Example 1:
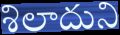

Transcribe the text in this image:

శిలాదుని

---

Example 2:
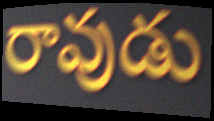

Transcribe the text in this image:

రావుడు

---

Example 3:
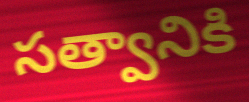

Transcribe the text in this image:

సత్వానికి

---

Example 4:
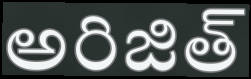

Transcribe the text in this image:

అరిజిత్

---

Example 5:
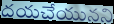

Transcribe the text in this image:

దయచేయునని